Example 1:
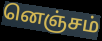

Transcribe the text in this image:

னெஞ்சம்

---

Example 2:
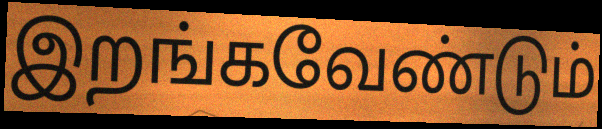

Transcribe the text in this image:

இறங்கவேண்டும்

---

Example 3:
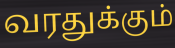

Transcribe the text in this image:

வரதுக்கும்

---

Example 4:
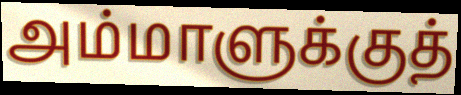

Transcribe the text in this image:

அம்மாளுக்குத்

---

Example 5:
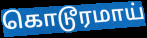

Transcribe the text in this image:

கொடூரமாய்